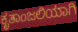
ಕೃತಾಂಜಲಿಯಾಗಿ